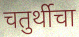
चतुर्थीचा